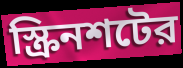
স্ক্রিনশটের